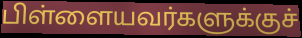
பிள்ளையவர்களுக்குச்